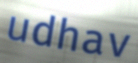
udhav